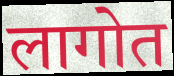
लागोत